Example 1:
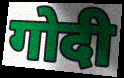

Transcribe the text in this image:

गोदी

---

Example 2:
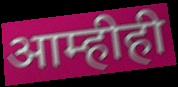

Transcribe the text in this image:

आम्हीही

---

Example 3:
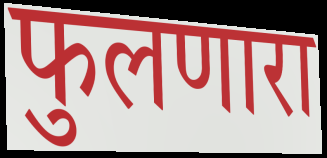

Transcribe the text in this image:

फुलणारा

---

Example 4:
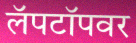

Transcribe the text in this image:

लॅपटॉपवर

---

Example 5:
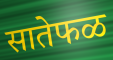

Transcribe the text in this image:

सातेफळ